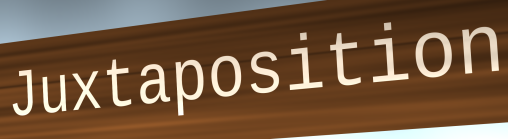
Juxtaposition